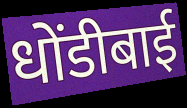
धोंडीबाई